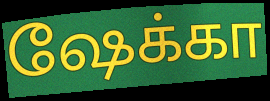
ஷேக்கா